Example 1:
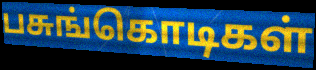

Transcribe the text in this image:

பசுங்கொடிகள்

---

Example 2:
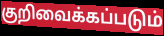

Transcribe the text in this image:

குறிவைக்கப்படும்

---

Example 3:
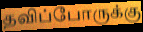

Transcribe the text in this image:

தவிப்போருக்கு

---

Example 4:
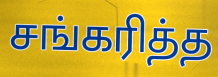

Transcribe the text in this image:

சங்கரித்த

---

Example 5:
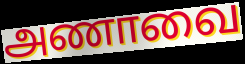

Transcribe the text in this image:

அணாவை